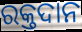
ରକ୍ତଦାନ